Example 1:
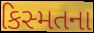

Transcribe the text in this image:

કિસ્મતના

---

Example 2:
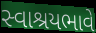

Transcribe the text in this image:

સ્વાશ્રયભાવે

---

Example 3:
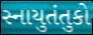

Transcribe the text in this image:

સ્નાયુતંતુકો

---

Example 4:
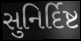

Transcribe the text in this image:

સુનિર્દિષ્ટ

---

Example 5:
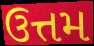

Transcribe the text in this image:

ઉત્તમ